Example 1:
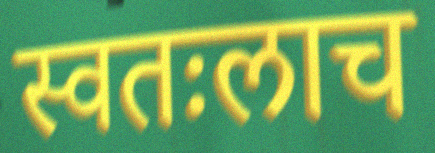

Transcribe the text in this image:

स्वतःलाच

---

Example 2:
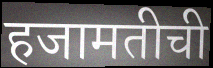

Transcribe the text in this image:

हजामतीची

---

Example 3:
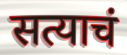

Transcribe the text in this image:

सत्याचं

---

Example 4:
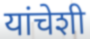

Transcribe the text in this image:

यांचेशी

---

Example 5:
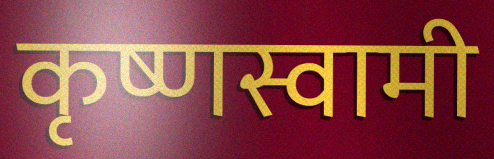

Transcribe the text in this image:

कृष्णस्वामी